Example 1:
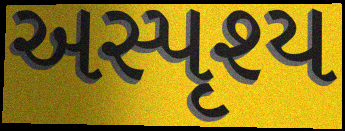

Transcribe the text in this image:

અસ્પૃશ્ય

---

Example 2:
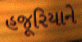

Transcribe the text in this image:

હજૂરિયાને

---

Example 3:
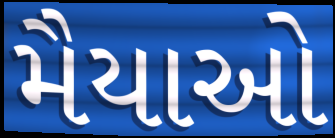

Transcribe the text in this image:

મૈયાઓ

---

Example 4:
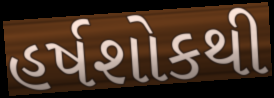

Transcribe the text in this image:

હર્ષશોકથી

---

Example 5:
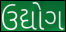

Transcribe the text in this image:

ઉદ્યોગ